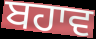
ਬਹਾਵ